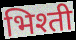
भिश्ती